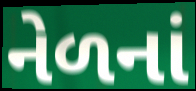
નેળનાં